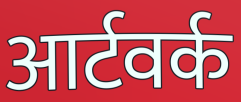
आर्टवर्क